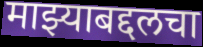
माझ्याबद्दलचा